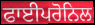
ਫਾਈਪਰੋਨਿਲ